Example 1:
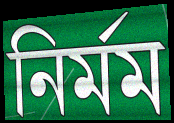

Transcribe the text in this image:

নির্মম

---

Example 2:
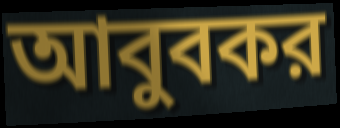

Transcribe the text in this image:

আবুবকর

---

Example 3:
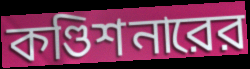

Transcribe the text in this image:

কণ্ডিশনারের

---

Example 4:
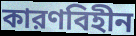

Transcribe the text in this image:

কারণবিহীন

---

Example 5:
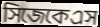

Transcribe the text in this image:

সিজেকেএস